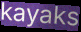
kayaks